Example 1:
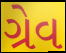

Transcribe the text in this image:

ગ્રેવ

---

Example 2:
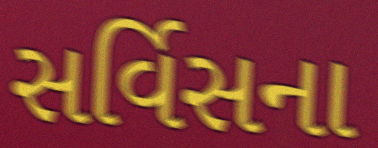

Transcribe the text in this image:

સર્વિસના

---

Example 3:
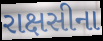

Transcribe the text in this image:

રાક્ષસીના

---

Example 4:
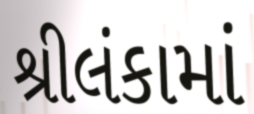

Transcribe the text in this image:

શ્રીલંકામાં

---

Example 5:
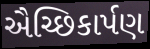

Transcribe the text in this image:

ઐચ્છિકાર્પણ